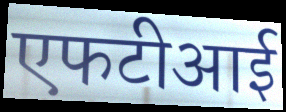
एफटीआई